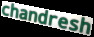
chandresh